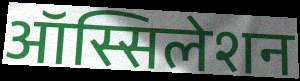
ऑस्सिलेशन